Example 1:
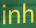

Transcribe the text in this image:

inh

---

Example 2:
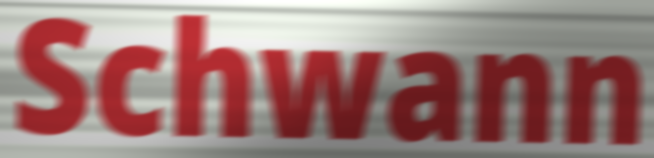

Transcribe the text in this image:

Schwann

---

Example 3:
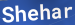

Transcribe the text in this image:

Shehar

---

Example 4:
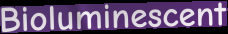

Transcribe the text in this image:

Bioluminescent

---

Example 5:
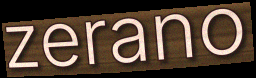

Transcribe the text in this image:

zerano